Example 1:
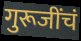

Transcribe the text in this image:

गुरूजींचं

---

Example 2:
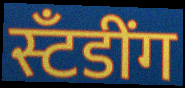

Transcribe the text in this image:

स्टँडींग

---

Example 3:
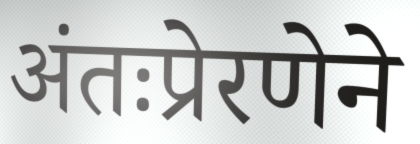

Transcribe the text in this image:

अंतःप्रेरणेने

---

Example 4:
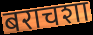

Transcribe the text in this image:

बराचशा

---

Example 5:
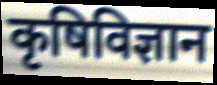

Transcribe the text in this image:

कृषिविज्ञान